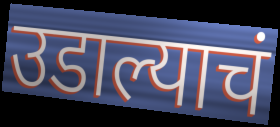
उडाल्याचं